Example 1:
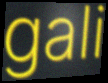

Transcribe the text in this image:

gali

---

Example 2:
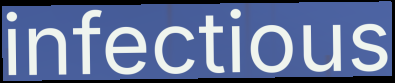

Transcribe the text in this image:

infectious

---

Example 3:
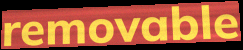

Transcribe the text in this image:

removable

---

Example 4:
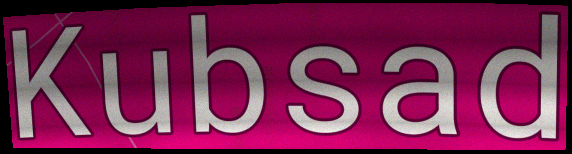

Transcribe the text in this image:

Kubsad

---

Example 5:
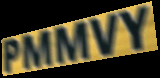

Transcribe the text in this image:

PMMVY